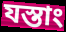
যস্তাং